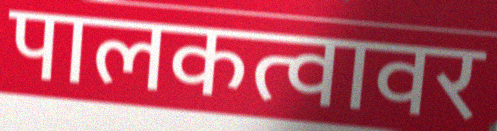
पालकत्वावर